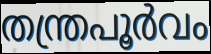
തന്ത്രപൂർവം